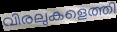
വിരലുകളെത്തി